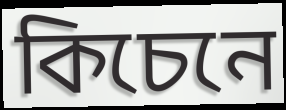
কিচেনে